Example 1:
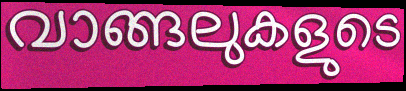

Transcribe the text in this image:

വാങ്ങലുകളുടെ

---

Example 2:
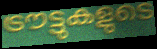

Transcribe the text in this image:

ട്രൗട്ടുകളുടെ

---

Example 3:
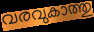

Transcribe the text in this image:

വരവുകാത്തു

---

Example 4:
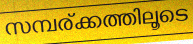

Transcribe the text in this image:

സമ്പര്ക്കത്തിലൂടെ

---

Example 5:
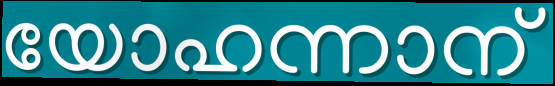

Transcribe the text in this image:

യോഹന്നാന്